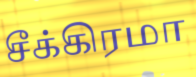
சீக்கிரமா